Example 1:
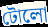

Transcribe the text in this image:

টোলো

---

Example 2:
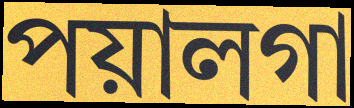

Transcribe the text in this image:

পয়ালগা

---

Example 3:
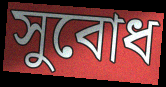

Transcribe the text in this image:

সুবোধ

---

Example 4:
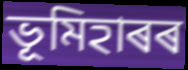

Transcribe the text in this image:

ভূমিহাৰৰ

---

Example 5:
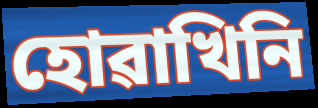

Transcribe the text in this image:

হোৱাখিনি